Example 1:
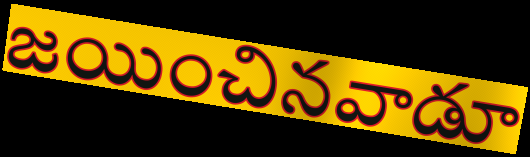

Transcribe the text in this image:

జయించినవాడూ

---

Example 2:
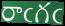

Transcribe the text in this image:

రాఁగఁ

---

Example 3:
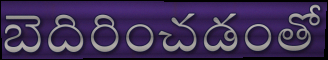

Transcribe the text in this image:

బెదిరించడంతో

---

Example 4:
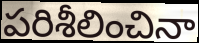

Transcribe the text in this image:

పరిశీలించినా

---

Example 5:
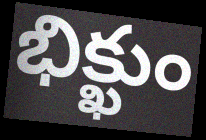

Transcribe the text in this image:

భిక్ఖుం